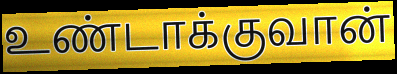
உண்டாக்குவான்